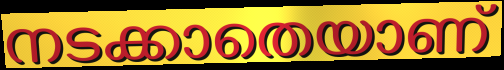
നടക്കാതെയാണ്